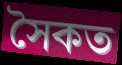
সৈকত